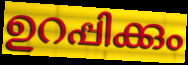
ഉറപ്പിക്കും